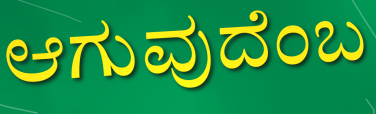
ಆಗುವುದೆಂಬ